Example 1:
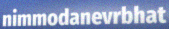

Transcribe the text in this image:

nimmodanevrbhat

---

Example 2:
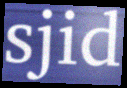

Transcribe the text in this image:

sjid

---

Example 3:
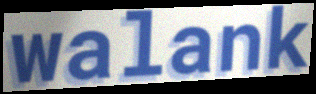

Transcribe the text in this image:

walank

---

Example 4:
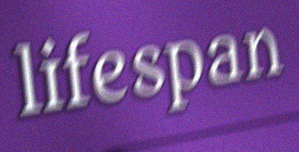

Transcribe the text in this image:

lifespan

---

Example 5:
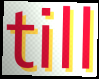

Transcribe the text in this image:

till